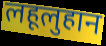
लहूलुहान